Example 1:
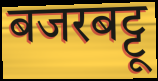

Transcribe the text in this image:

बजरबट्टू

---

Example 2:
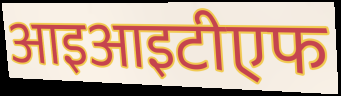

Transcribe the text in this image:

आइआइटीएफ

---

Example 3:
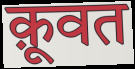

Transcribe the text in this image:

क़ूवत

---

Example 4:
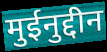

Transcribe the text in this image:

मुईनुद्दीन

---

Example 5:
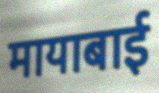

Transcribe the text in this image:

मायाबाई